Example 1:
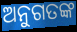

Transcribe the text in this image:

ଅନୁଗତଙ୍କ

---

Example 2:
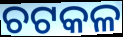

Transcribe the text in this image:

ଚଟକଳ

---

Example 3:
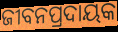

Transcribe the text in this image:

ଜୀବନପ୍ରଦାୟକ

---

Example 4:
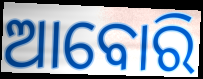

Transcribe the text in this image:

ଆବୋରି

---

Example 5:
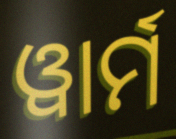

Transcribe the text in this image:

ୱାର୍ମ